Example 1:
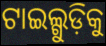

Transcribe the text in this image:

ଟାଇଲ୍ଗୁଡ଼ିକୁ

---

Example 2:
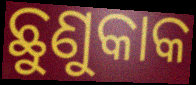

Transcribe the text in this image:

ଛୁଣୁକାକ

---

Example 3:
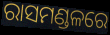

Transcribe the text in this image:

ରାସମଣ୍ଡଳରେ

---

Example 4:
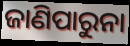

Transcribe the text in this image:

ଜାଣିପାରୁନା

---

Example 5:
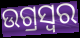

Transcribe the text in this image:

ଉଗ୍ରସ୍ୱର